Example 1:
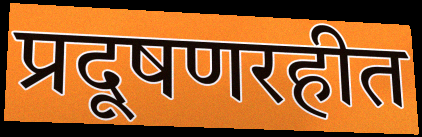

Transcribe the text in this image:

प्रदूषणरहीत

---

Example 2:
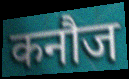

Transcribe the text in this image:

कनौज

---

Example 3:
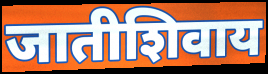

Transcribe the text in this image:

जातीशिवाय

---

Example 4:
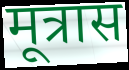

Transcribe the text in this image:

मूत्रास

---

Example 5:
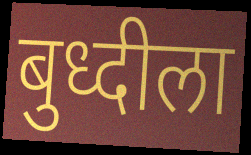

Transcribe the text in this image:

बुध्दीला